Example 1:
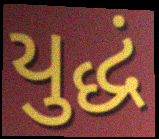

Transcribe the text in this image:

યુદ્ધં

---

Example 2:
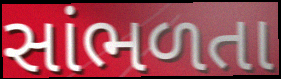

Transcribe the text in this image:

સાંભળતા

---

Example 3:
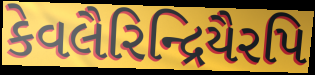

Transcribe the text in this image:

કેવલૈરિન્દ્રિયૈરપિ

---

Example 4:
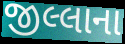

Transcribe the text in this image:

જીલ્લાના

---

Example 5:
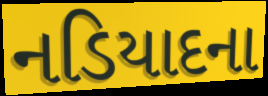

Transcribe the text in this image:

નડિયાદના